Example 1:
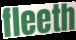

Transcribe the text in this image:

fleeth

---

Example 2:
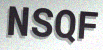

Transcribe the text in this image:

NSQF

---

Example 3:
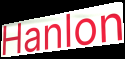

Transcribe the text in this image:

Hanlon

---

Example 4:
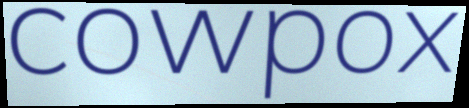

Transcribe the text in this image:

cowpox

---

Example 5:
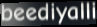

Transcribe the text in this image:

beediyalli